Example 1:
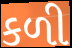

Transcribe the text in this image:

કળી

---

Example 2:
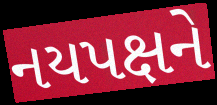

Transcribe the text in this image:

નયપક્ષને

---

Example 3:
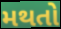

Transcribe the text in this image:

મથતો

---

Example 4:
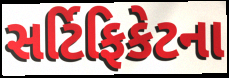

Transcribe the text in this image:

સર્ટિફિકેટના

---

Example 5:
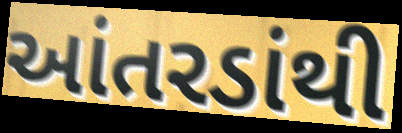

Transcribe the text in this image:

આંતરડાંથી